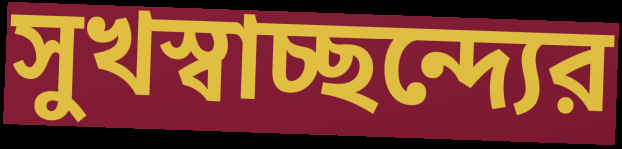
সুখস্বাচ্ছন্দ্যের